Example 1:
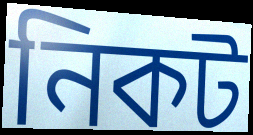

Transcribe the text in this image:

নিকট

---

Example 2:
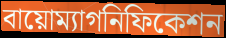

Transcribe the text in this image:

বায়োম্যাগনিফিকেশন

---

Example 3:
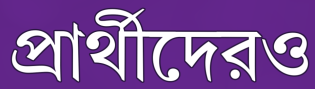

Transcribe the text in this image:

প্রার্থীদেরও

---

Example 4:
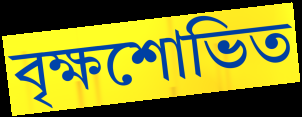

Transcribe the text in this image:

বৃক্ষশোভিত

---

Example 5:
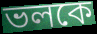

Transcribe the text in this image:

ভলকে